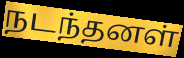
நடந்தனள்